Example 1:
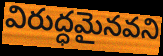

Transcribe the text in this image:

విరుద్ధమైనవని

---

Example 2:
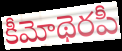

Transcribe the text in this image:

కీమోథెరపీ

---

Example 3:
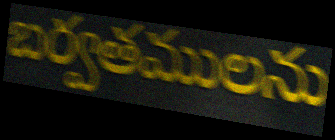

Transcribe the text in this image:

బర్వతములను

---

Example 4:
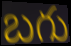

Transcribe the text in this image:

బగు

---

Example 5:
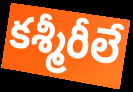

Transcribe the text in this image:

కశ్మీరీలే